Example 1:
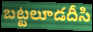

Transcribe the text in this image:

బట్టలూడదీసి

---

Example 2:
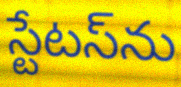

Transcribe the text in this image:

స్టేటస్‌ను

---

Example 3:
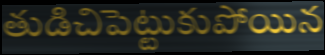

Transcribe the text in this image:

తుడిచిపెట్టుకుపోయిన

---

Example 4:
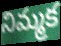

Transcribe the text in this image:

నిమ్మక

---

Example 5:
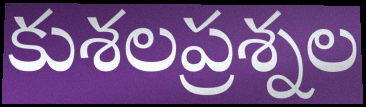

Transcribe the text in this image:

కుశలప్రశ్నల